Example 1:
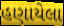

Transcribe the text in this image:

હણાયેલા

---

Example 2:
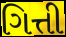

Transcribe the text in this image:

ગિત્તી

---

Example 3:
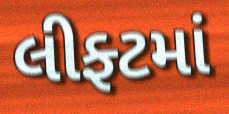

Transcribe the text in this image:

લીફ્ટમાં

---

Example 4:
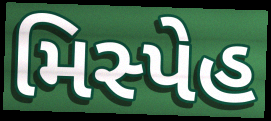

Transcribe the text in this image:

મિસ્પેહ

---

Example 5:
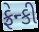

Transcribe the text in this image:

ફ્રેન્કી